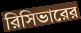
রিসিভারের